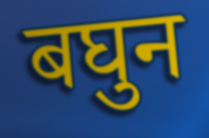
बघुन